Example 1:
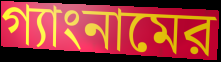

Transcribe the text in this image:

গ্যাংনামের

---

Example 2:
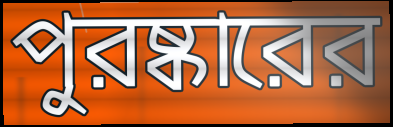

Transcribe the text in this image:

পুরষ্কারের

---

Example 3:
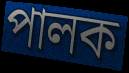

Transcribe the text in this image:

পালক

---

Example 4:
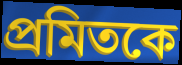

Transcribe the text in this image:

প্রমিতকে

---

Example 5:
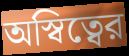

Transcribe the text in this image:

অস্বিত্বের